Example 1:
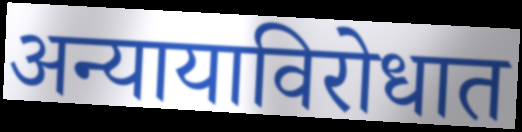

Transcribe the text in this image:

अन्यायाविरोधात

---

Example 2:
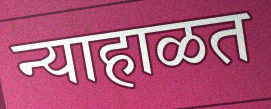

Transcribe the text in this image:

न्याहाळत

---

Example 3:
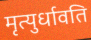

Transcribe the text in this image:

मृत्युर्धावति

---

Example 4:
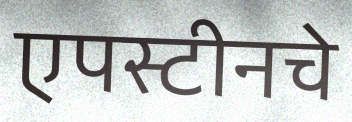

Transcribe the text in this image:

एपस्टीनचे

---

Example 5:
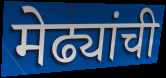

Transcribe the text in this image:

मेढ्यांची